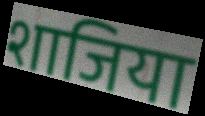
शाजिया